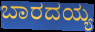
ಬಾರದಯ್ಯ